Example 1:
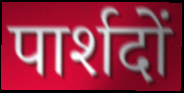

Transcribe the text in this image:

पार्शदों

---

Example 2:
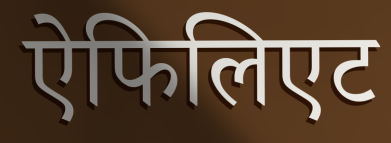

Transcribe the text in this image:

ऐफिलिएट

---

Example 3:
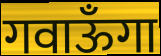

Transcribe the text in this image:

गवाऊँगा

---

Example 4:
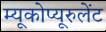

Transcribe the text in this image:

म्यूकोप्यूरुलेंट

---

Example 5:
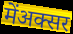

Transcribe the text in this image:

मेंअक्सर